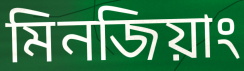
মিনজিয়াং